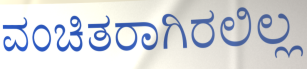
ವಂಚಿತರಾಗಿರಲಿಲ್ಲ